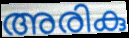
അരികു